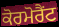
ਕੋਰਮੋਰੈਂਟ